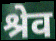
श्रेव